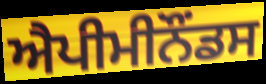
ਐਪੀਮੀਨੌਂਡਸ